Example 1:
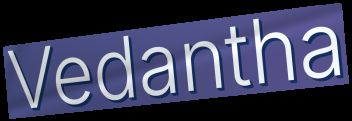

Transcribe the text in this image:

Vedantha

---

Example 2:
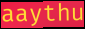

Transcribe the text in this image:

aaythu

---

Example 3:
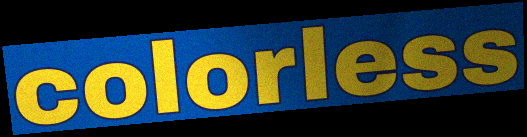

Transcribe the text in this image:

colorless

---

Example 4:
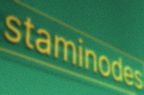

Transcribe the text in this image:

staminodes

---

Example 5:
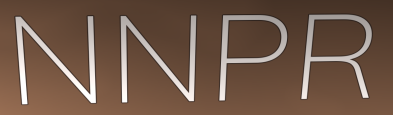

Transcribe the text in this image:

NNPR